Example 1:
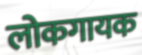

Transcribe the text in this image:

लोकगायक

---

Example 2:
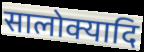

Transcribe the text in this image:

सालोक्यादि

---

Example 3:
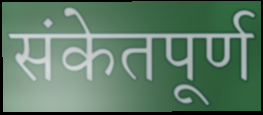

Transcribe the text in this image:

संकेतपूर्ण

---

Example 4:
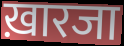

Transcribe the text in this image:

ख़ारजा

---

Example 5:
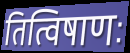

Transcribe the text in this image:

तित्विषाणः